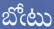
బోఁటు